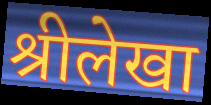
श्रीलेखा